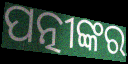
ପତ୍ନୀଙ୍କର